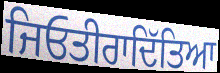
ਜਿਓਤੀਰਾਦਿੱਤਿਆ